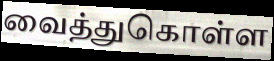
வைத்துகொள்ள